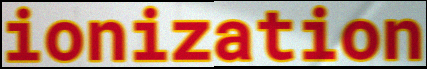
ionization